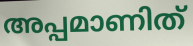
അപ്പമാണിത്